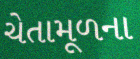
ચેતામૂળના